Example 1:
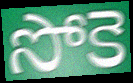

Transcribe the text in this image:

సోకె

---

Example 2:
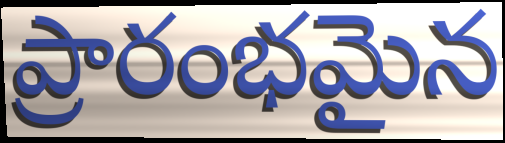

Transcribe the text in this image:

ప్రారంభమైన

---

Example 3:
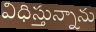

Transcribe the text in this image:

విధిస్తున్నాను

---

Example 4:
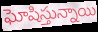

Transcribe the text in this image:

ఘోషిస్తున్నాయి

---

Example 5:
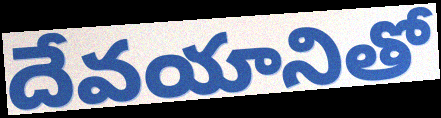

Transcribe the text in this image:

దేవయానితో